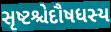
સૃષ્ટશ્ચેદૌષધસ્ય